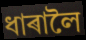
ধাৰালৈ